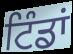
ਟਿੰਡਾਂ